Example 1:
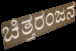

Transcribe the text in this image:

ಚಿತ್ತರಂಜನ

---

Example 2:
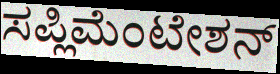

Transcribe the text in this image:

ಸಪ್ಲಿಮೆಂಟೇಶನ್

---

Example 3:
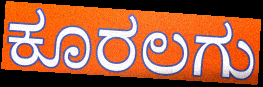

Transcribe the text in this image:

ಕೂರಲಗು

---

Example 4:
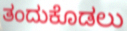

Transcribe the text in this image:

ತಂದುಕೊಡಲು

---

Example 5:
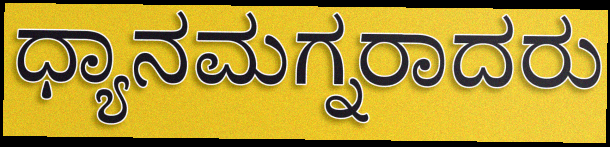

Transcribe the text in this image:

ಧ್ಯಾನಮಗ್ನರಾದರು